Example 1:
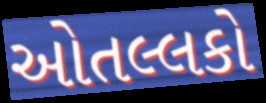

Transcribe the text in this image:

ઓતલ્લકો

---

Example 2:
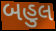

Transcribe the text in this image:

બહુલ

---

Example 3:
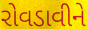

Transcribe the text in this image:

રોવડાવીને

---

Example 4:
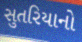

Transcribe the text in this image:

સુતરિયાનો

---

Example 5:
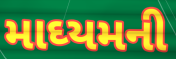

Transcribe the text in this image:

માઘ્યમની